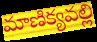
మాణిక్యవల్లి